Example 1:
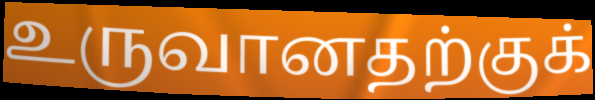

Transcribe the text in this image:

உருவானதற்குக்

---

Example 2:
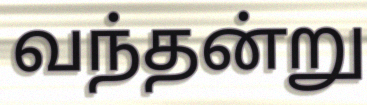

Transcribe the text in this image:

வந்தன்று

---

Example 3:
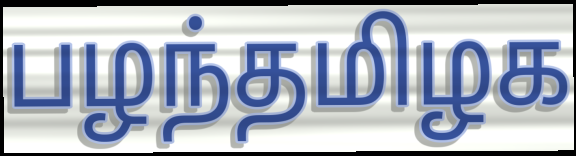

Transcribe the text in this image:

பழந்தமிழக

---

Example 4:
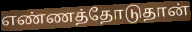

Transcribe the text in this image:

எண்ணத்தோடுதான்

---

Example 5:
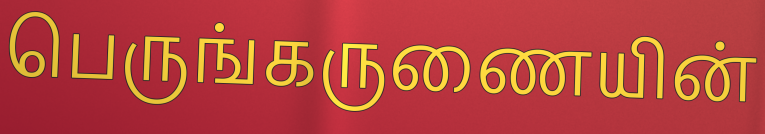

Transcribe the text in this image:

பெருங்கருணையின்